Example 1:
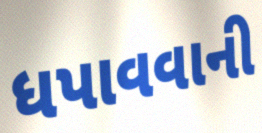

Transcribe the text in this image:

ધપાવવાની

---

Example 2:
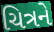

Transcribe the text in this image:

ચિત્રને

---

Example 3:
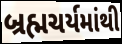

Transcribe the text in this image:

બ્રહ્મચર્યમાંથી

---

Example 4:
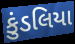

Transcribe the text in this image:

કુંડલિયા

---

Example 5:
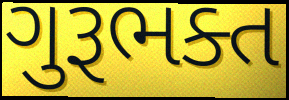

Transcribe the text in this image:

ગુરૂભક્ત